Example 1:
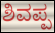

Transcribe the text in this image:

ಶಿವಪ್ಪ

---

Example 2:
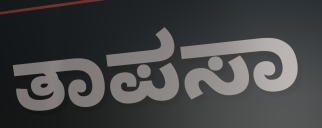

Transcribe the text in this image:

ತಾಪಸಾ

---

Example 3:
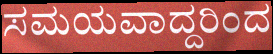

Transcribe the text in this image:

ಸಮಯವಾದ್ದರಿಂದ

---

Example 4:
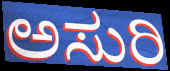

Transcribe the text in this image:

ಅಸುರಿ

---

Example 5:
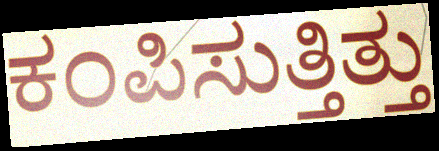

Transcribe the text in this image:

ಕಂಪಿಸುತ್ತಿತ್ತು